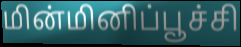
மின்மினிப்பூச்சி